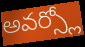
అవర్స్లో